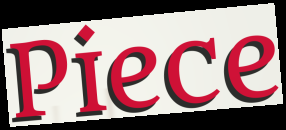
Piece